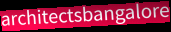
architectsbangalore